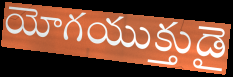
యోగయుక్తుడై